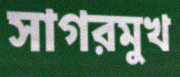
সাগরমুখ